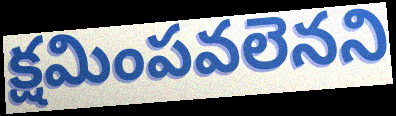
క్షమింపవలెనని